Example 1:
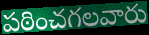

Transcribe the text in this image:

పఠించగలవారు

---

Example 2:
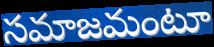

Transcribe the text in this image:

సమాజమంటూ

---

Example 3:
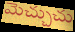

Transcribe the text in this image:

మెచ్చుచు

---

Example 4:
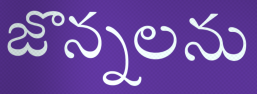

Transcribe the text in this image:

జొన్నలను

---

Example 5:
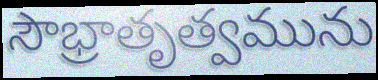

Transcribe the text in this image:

సౌభ్రాతృత్వమును